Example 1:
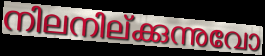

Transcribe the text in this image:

നിലനില്ക്കുന്നുവോ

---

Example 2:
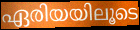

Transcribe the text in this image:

ഏരിയയിലൂടെ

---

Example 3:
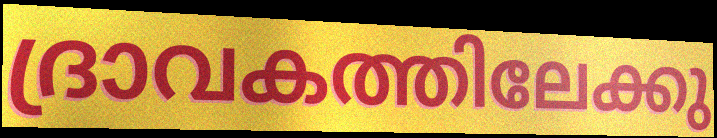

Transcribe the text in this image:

ദ്രാവകത്തിലേക്കു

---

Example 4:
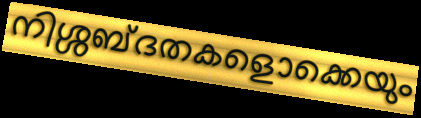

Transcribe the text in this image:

നിശ്ശബ്ദതകളൊക്കെയും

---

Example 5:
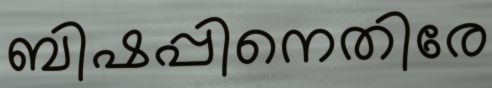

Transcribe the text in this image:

ബിഷപ്പിനെതിരേ